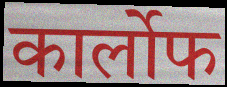
कार्लोफ